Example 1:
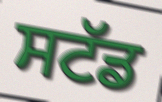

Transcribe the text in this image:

ਸਟੱਡ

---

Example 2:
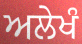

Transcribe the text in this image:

ਅਲੇਖੰ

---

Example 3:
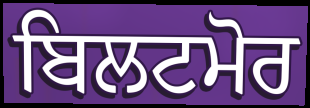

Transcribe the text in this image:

ਬਿਲਟਮੋਰ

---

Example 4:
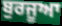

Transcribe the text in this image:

ਬੁਰਜੂਆ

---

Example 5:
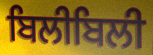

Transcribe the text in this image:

ਬਿਲੀਬਿਲੀ